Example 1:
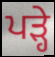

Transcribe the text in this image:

ਪੜ੍ਹੇ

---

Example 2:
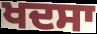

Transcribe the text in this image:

ਖਦਸਾ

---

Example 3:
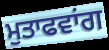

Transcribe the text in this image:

ਮੁਤਾਫਵਾਂਗ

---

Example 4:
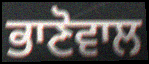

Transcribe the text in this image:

ਭਾਣੋਵਾਲ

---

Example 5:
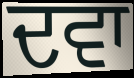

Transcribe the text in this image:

ਦਵਾ